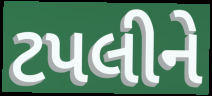
ટપલીને